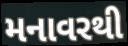
મનાવરથી